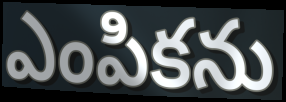
ఎంపికను